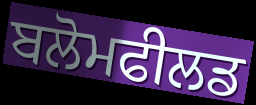
ਬਲੋਮਫੀਲਡ